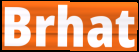
Brhat